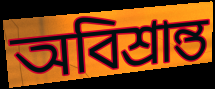
অবিশ্রান্ত